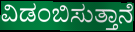
ವಿಡಂಬಿಸುತ್ತಾನೆ